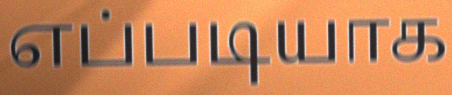
எப்படியாக